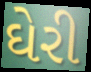
ઘેરી